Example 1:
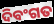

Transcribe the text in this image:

ଦିବଂଗତ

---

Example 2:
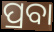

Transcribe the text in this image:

ପ୍ରବା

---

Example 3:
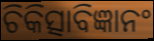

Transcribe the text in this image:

ଚିକିତ୍ସାବିଜ୍ଞାନଂ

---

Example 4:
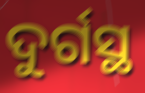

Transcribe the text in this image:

ଦୁର୍ଗସ୍ଥ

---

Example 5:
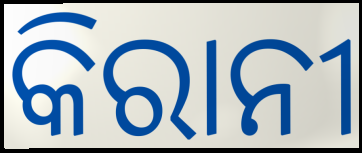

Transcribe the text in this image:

କିରାନୀ